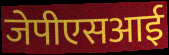
जेपीएसआई